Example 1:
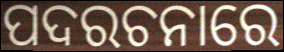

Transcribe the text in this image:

ପଦରଚନାରେ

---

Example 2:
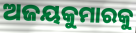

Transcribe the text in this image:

ଅଜୟକୁମାରକୁ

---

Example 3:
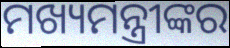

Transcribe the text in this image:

ମଖ୍ୟମନ୍ତ୍ରୀଙ୍କର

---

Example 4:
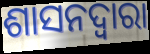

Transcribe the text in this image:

ଶାସନଦ୍ୱାରା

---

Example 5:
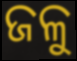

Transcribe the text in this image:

ଜଳୁ